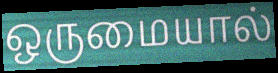
ஒருமையால்